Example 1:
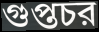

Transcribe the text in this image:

গুপ্তচর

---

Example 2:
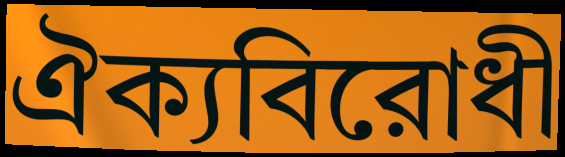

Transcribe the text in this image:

ঐক্যবিরোধী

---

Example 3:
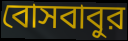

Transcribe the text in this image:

বোসবাবুর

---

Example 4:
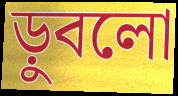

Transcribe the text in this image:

ড়ুবলো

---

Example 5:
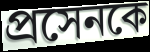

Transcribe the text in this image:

প্রসেনকে